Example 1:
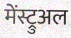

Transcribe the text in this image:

मेंस्ट्रुअल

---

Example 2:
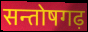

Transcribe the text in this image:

सन्तोषगढ़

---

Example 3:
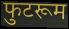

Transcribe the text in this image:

फुटरूम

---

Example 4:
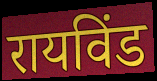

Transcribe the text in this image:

रायविंड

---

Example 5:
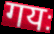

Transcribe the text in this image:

गयः